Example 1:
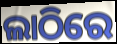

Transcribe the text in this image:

ଲାଠିରେ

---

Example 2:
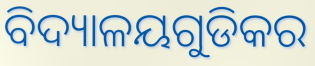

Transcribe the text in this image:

ବିଦ୍ୟାଳୟଗୁଡିକର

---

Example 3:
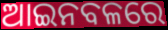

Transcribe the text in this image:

ଆଇନବଳରେ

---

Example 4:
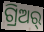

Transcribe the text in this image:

ଗ୍ରିଅର୍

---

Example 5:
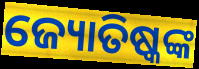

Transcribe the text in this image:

ଜ୍ୟୋତିଷ୍କଙ୍କ